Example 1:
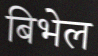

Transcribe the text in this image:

बिभेल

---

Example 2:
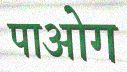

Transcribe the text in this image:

पाओग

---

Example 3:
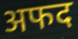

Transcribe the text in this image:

अफद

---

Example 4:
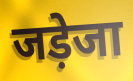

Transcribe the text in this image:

जड़ेजा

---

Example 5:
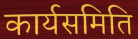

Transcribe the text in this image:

कार्यसमिति